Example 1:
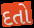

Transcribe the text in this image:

દતો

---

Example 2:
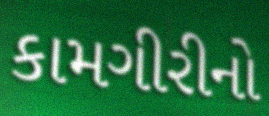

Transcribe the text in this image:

કામગીરીનો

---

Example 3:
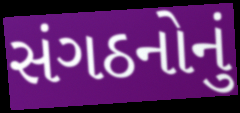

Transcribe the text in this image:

સંગઠનોનું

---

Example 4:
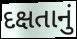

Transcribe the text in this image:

દક્ષતાનું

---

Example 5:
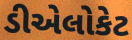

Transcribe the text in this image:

ડીએલોકેટ